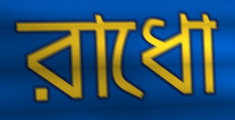
রাধো